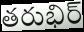
తరుభిర్